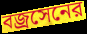
বজ্রসেনের